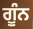
ਗੂੰਨ